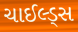
ચાઈલ્ડ્સ